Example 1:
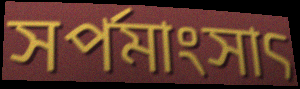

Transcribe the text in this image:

সর্পমাংসাৎ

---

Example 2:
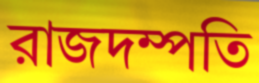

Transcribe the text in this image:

রাজদম্পতি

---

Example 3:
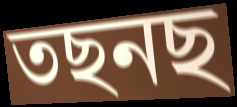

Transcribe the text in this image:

তছনছ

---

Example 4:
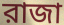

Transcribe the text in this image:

রাজা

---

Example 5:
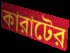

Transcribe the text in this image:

কারাটের